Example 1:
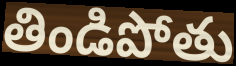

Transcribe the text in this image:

తిండిపోతు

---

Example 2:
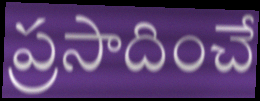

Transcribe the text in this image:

ప్రసాదించే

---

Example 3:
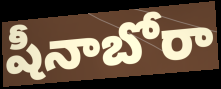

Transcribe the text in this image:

షీనాబోరా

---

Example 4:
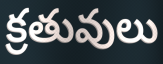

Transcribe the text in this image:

క్రతువులు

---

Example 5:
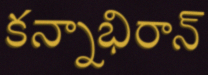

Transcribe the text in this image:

కన్నాభిరాన్